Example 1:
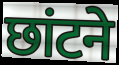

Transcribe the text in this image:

छांटने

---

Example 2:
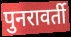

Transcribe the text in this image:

पुनरावर्ती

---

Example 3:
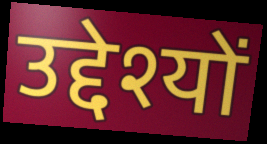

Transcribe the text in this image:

उद्देश्यों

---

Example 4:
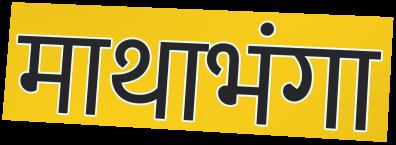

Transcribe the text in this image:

माथाभंगा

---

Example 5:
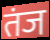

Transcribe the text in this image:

तंज